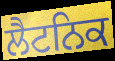
ਲੈਟਨਿਕ